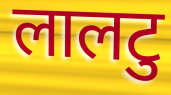
लालटु